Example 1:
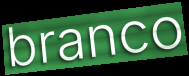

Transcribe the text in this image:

branco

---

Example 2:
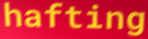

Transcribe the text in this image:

hafting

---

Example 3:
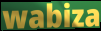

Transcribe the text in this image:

wabiza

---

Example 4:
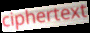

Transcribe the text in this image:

ciphertext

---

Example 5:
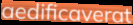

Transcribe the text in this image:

aedificaverat